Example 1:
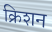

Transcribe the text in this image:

क्रिशन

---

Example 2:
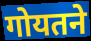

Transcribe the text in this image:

गोयतने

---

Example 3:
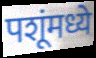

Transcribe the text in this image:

पशूंमध्ये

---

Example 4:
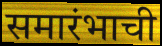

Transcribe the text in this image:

समारंभाची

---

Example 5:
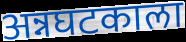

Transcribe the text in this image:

अन्नघटकाला